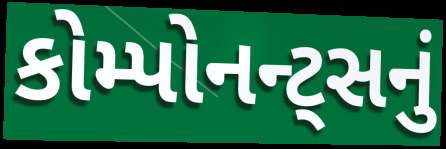
કોમ્પોનન્ટ્સનું